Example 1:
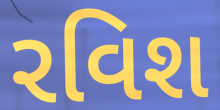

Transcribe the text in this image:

રવિશ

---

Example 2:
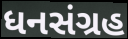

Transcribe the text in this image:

ધનસંગ્રહ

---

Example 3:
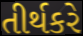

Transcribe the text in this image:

તીર્થકરે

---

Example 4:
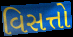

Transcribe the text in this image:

વિસત્તો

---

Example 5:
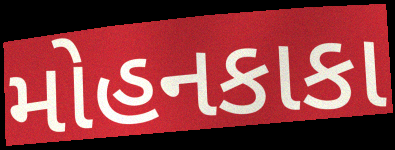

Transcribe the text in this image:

મોહનકાકા